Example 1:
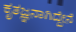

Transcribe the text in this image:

ಕೃತಜ್ಞನಾಗಿದ್ದೇನೆ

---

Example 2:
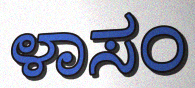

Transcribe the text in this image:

ಳಾಸಂ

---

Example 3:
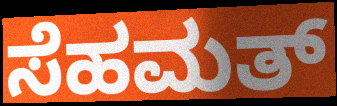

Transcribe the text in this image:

ಸೆಹಮತ್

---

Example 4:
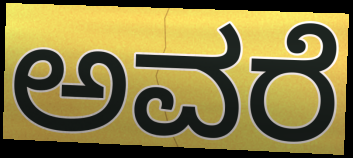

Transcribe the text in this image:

ಅವರೆ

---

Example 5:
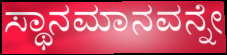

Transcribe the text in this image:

ಸ್ಥಾನಮಾನವನ್ನೇ